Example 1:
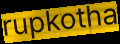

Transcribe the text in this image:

rupkotha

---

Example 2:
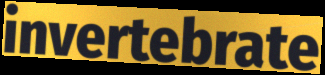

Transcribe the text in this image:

invertebrate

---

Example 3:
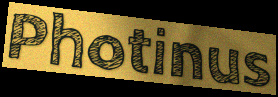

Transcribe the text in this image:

Photinus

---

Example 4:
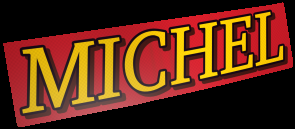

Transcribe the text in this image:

MICHEL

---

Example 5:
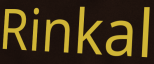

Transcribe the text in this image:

Rinkal